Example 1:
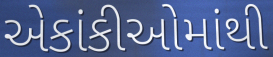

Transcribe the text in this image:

એકાંકીઓમાંથી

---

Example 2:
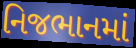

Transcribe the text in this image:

નિજભાનમાં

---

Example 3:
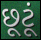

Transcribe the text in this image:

છૂટૂં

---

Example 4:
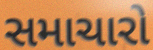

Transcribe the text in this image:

સમાચારો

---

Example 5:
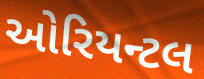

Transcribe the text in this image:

ઓરિયન્ટલ